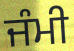
ਜੰਮੀ